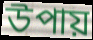
উপায়